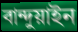
বান্দুয়াইন